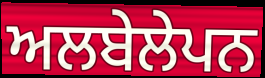
ਅਲਬੇਲੇਪਨ